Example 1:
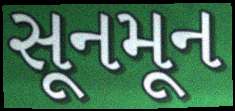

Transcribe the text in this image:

સૂનમૂન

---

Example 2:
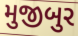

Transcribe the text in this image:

મુજીબુર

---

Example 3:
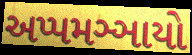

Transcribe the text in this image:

અપ્પમઞ્ઞાયો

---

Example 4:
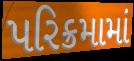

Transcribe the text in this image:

પરિક્રમામાં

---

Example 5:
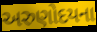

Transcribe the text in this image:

અરુણોદયના